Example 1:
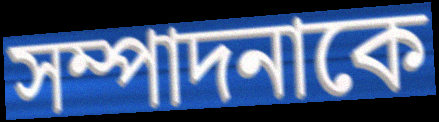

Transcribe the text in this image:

সম্পাদনাকে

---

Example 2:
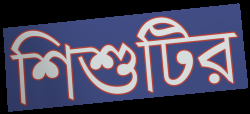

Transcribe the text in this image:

শিশুটির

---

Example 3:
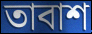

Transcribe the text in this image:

তাবাশ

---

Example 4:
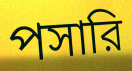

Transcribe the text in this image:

পসারি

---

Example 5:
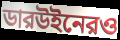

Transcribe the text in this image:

ডারউইনেরও